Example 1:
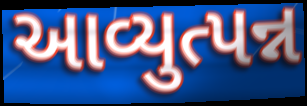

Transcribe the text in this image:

આવ્યુત્પન્ન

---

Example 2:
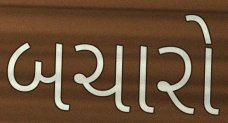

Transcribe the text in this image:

બચારો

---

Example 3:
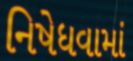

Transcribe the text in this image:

નિષેધવામાં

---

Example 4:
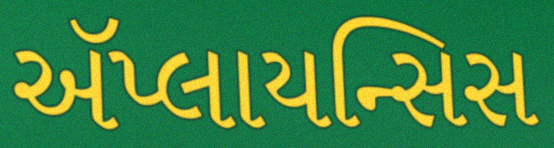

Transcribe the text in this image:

ઍપ્લાયન્સિસ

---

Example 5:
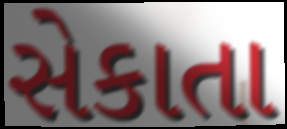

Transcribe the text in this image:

સેકાતા